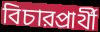
বিচারপ্রার্থী